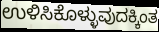
ಉಳಿಸಿಕೊಳ್ಳುವುದಕ್ಕಿಂತ